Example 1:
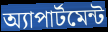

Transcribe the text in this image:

অ্যাপার্টমেন্ট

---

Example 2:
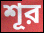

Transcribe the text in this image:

শূর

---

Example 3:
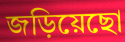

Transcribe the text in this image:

জড়িয়েছো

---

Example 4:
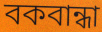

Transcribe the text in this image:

বকবান্ধা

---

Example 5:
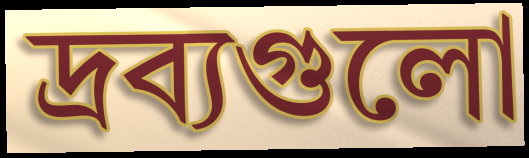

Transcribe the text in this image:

দ্রব্যগুলো